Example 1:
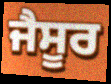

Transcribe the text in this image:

ਜੈਸੂਰ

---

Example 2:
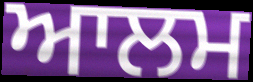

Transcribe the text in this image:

ਆਲਮ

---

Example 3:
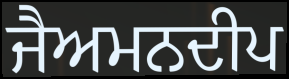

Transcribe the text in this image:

ਜੈਅਮਨਦੀਪ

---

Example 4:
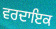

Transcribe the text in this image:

ਵਰਦਾਇਕ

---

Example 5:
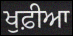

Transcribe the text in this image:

ਖੁਫ਼ੀਆ